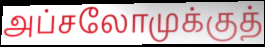
அப்சலோமுக்குத்